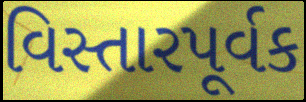
વિસ્તારપૂર્વક